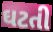
ઘટતી